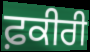
ਫ਼ਕੀਰੀ